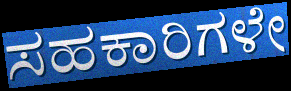
ಸಹಕಾರಿಗಳೇ